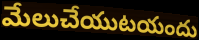
మేలుచేయుటయందు